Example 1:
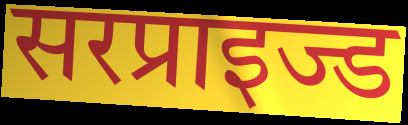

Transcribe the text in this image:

सरप्राइज्ड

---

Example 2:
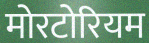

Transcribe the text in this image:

मोरटोरियम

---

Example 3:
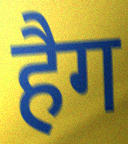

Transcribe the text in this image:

हैग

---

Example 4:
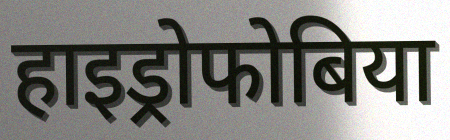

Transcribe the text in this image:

हाइड्रोफोबिया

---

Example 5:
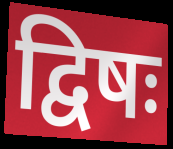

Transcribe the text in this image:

द्विषः